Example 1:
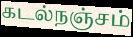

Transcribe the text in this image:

கடல்நஞ்சம்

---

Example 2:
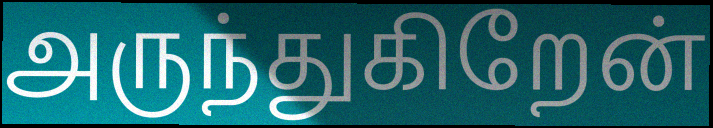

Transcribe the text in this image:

அருந்துகிறேன்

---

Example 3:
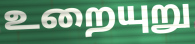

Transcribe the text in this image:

உறையுறு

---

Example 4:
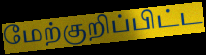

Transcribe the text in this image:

மேற்குறிப்பிட்ட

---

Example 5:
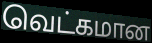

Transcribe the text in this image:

வெட்கமான